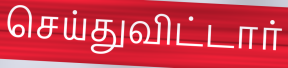
செய்துவிட்டார்